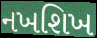
નખશિખ